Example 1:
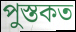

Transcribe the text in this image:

পুস্তকত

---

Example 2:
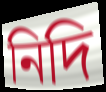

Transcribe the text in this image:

নিদি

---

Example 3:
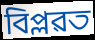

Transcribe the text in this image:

বিপ্লৱত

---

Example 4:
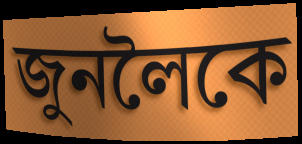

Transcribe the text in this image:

জুনলৈকে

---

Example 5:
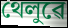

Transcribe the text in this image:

থেলুৱে